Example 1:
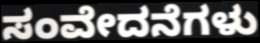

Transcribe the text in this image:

ಸಂವೇದನೆಗಳು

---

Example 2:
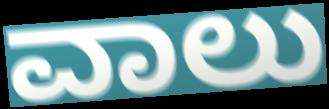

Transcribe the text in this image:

ವಾಲು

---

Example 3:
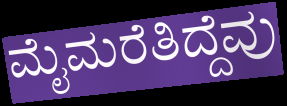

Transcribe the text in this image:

ಮೈಮರೆತಿದ್ದೆವು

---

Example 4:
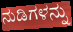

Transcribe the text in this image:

ನುಡಿಗಳನ್ನು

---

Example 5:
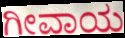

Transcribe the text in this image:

ಗೀವಾಯ